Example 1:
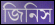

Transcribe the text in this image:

জিনিস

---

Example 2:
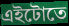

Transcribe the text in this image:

এইটোতে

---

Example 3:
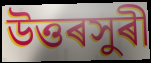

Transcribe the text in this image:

উত্তৰসুৰী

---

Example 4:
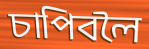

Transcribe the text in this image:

চাপিবলৈ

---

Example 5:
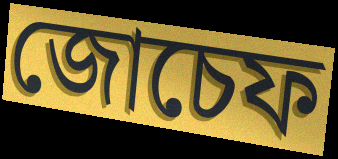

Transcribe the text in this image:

জোচেফ